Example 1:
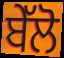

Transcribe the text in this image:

ਬੇੱਲੋ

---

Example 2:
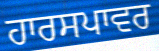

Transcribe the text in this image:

ਹਾਰਸਪਾਵਰ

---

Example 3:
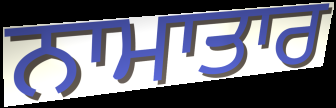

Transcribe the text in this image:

ਨਾਮਾਤਾਰ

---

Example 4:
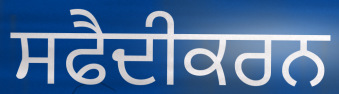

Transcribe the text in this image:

ਸਫੈਦੀਕਰਨ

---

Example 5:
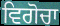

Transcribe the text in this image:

ਵਿਗੋਚਾ